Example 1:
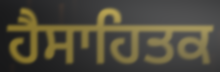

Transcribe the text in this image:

ਹੈਸਾਹਿਤਕ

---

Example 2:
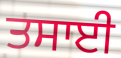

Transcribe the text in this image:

ਤਸਾਈ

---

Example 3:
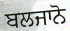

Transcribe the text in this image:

ਬਲਜਾਨੋ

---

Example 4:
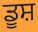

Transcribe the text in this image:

ਡੂਸ਼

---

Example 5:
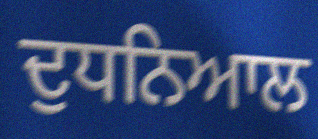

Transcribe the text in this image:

ਦੁਧਨਿਆਲ